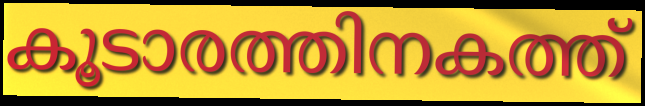
കൂടാരത്തിനകത്ത്